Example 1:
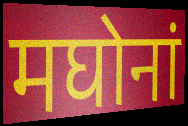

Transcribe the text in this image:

मघोनां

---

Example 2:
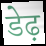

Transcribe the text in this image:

डेढ़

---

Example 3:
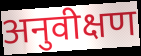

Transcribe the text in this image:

अनुवीक्षण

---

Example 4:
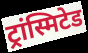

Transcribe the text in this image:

ट्रांस्मिटेड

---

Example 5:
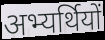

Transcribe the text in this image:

अभ्यर्थियों